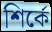
শির্কে